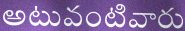
అటువంటివారు